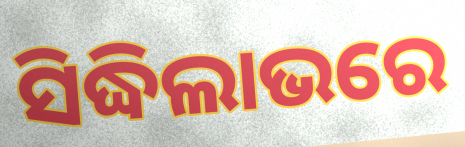
ସିଦ୍ଧିଲାଭରେ